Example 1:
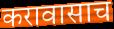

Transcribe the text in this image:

करावासाच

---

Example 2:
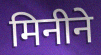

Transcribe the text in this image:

मिनीने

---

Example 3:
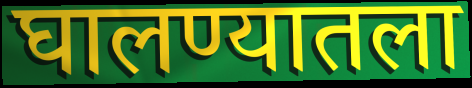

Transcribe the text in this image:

घालण्यातला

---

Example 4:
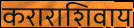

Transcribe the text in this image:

कराराशिवाय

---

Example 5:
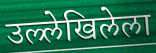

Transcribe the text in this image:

उल्लेखिलेला